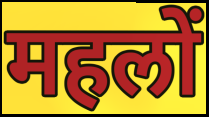
महलों